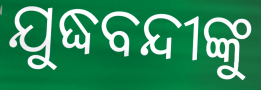
ଯୁଦ୍ଧବନ୍ଦୀଙ୍କୁ